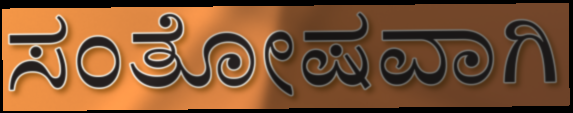
ಸಂತೋಷವಾಗಿ